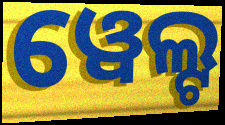
ୱେଲ୍ଟ